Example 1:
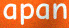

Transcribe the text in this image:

apan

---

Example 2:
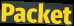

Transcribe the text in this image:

Packet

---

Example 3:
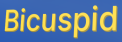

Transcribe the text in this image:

Bicuspid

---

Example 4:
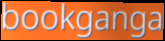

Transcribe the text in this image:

bookganga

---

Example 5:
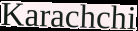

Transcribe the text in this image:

Karachchi